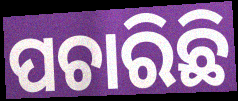
ପଚାରିଛି